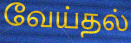
வேய்தல்